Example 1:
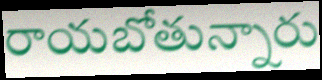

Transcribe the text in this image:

రాయబోతున్నారు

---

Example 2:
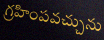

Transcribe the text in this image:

గ్రహింపవచ్చును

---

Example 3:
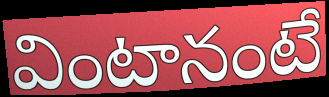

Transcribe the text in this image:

వింటానంటే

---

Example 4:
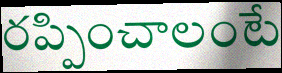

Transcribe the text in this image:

రప్పించాలంటే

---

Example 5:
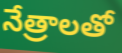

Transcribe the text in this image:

నేత్రాలతో